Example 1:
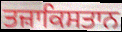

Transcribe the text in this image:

ਤਜ਼ਾਕਿਸਤਾਨ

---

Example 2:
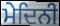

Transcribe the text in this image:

ਮੇਦਿਨੀ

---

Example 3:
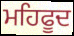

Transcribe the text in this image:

ਮਹਿਫੂਦ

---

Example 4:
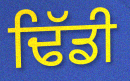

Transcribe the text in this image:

ਢਿੱਡੀ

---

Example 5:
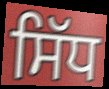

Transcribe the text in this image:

ਸਿੱਧ